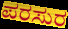
ಪರಸುರ